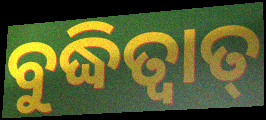
ବୁଦ୍ଧିତ୍ୱାତ୍